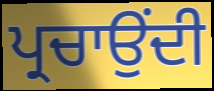
ਪ੍ਰਚਾਉਂਦੀ